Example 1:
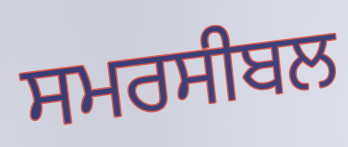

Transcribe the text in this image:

ਸਮਰਸੀਬਲ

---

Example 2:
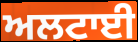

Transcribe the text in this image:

ਅਲਟਾਈ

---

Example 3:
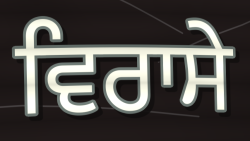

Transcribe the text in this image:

ਵਿਰਾਸੇ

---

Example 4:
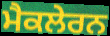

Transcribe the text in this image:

ਮੈਕਲੇਰਨ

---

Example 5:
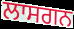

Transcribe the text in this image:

ਲਾਸਗਨ